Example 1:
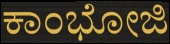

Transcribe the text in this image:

ಕಾಂಭೋಜಿ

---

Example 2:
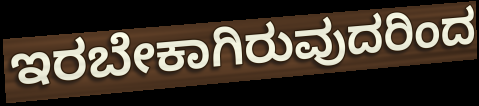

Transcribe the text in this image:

ಇರಬೇಕಾಗಿರುವುದರಿಂದ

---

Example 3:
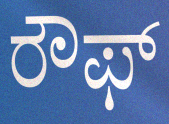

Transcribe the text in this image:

ರೌಫ್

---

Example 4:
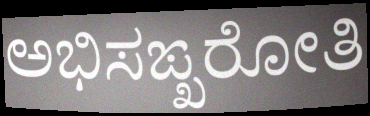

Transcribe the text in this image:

ಅಭಿಸಙ್ಖರೋತಿ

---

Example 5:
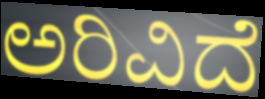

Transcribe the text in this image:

ಅರಿವಿದೆ